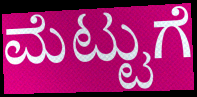
ಮೆಟ್ಟುಗೆ